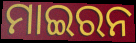
ମାଇରନ